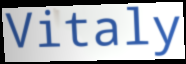
Vitaly